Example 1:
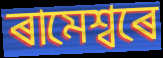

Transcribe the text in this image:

ৰামেশ্বৰে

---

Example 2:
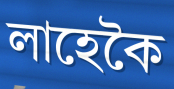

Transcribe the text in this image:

লাহেকৈ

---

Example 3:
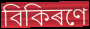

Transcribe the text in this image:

বিকিৰণে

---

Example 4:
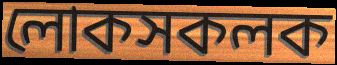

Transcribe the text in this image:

লোকসকলক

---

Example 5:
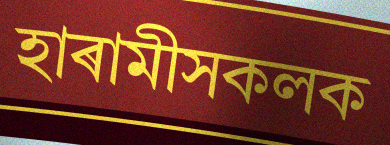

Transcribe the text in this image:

হাৰামীসকলক